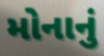
મોનાનું